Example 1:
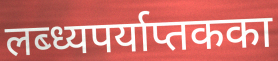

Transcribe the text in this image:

लब्ध्यपर्याप्तकका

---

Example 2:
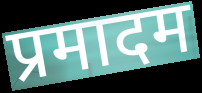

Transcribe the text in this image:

प्रमादम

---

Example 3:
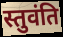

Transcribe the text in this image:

स्तुवंति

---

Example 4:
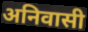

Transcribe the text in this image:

अनिवासी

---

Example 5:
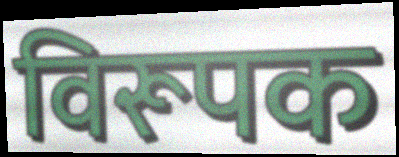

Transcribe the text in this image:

विरूपक